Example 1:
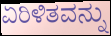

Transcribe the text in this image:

ಏರಿಳಿತವನ್ನು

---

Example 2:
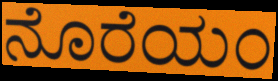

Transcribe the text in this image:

ನೊರೆಯಂ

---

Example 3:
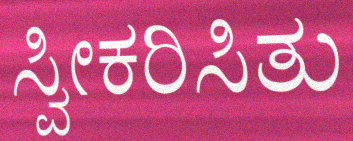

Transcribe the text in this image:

ಸ್ವೀಕರಿಸಿತು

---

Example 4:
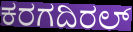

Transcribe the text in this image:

ಕರಗದಿರಲ್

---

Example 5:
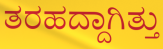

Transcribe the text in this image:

ತರಹದ್ದಾಗಿತ್ತು